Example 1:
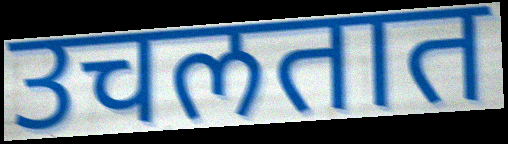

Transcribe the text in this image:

उचलतात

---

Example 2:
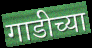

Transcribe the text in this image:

गाडीच्या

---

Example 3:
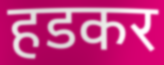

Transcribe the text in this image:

हडकर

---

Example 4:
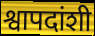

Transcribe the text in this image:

श्वापदांशी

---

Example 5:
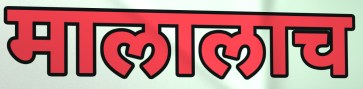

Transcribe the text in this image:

मालालाच